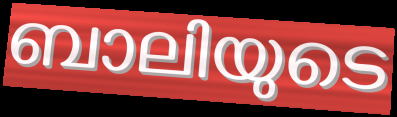
ബാലിയുടെ